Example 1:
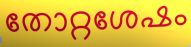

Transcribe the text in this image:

തോറ്റശേഷം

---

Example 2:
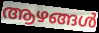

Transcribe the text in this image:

ആഴങ്ങൾ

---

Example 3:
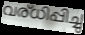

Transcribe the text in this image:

വര്ധിപ്പിച്ചു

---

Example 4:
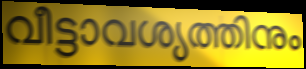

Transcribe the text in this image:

വീട്ടാവശ്യത്തിനും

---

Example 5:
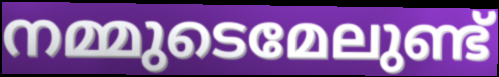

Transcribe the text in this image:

നമ്മുടെമേലുണ്ട്